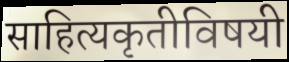
साहित्यकृतीविषयी